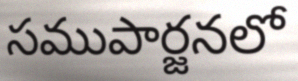
సముపార్జనలో